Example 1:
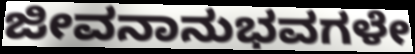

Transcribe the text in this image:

ಜೀವನಾನುಭವಗಳೇ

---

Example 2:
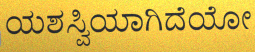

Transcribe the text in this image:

ಯಶಸ್ವಿಯಾಗಿದೆಯೋ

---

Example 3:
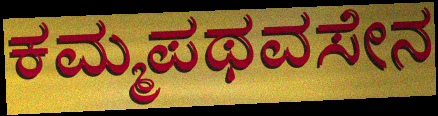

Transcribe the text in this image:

ಕಮ್ಮಪಥವಸೇನ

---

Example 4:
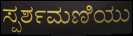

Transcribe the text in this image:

ಸ್ಪರ್ಶಮಣಿಯು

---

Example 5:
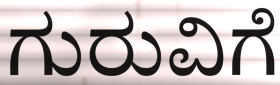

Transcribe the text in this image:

ಗುರುವಿಗೆ